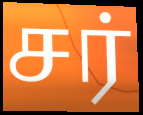
சர்